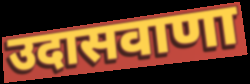
उदासवाणा